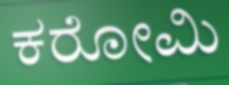
ಕರೋಮಿ